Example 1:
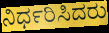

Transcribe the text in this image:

ನಿರ್ಧರಿಸಿದರು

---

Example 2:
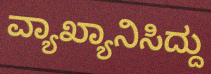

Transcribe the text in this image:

ವ್ಯಾಖ್ಯಾನಿಸಿದ್ದು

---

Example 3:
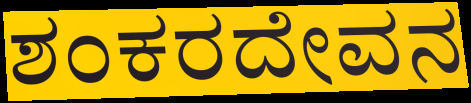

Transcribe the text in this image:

ಶಂಕರದೇವನ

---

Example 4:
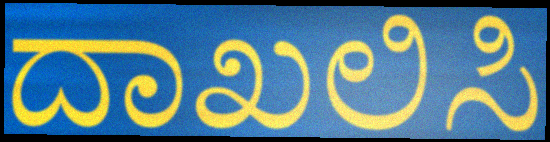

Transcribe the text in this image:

ದಾಖಲಿಸಿ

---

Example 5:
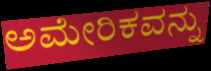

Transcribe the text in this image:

ಅಮೇರಿಕವನ್ನು